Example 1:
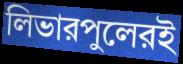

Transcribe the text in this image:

লিভারপুলেরই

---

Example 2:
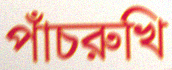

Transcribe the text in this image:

পাঁচরুখি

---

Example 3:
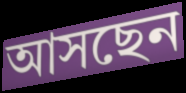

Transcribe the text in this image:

আসছেন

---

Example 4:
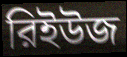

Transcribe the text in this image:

রিইউজ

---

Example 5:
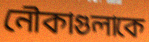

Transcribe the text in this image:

নৌকাগুলাকে